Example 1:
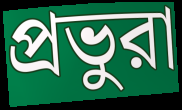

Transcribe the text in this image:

প্রভুরা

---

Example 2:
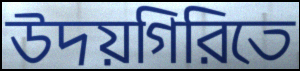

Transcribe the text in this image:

উদয়গিরিতে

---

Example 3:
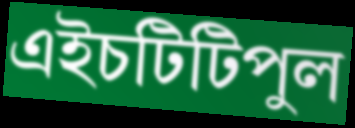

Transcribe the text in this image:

এইচটিটিপুল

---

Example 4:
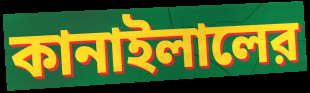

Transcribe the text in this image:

কানাইলালের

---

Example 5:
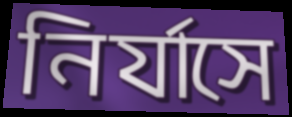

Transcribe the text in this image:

নির্যাসে